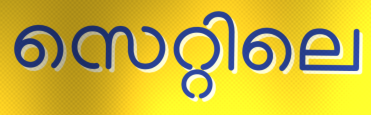
സെറ്റിലെ